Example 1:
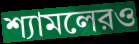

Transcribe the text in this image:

শ্যামলেরও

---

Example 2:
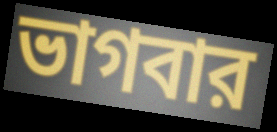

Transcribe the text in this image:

ভাগবার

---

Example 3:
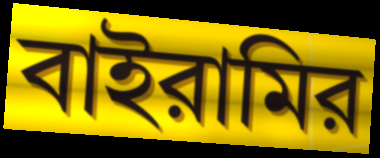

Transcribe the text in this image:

বাইরামির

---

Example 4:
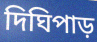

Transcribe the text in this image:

দিঘিপাড়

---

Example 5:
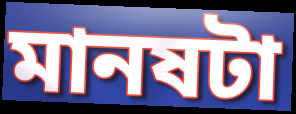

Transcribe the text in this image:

মানষটা